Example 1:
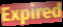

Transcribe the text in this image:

Expired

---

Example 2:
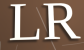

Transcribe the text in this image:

LR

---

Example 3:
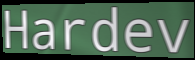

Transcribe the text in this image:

Hardev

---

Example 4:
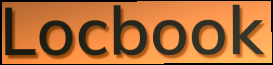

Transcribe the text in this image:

Locbook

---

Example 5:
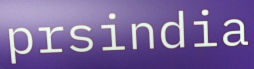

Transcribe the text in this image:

prsindia